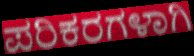
ಪರಿಕರಗಳಾಗಿ